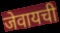
जेवायची